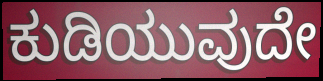
ಕುಡಿಯುವುದೇ